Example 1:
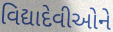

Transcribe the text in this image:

વિદ્યાદેવીઓને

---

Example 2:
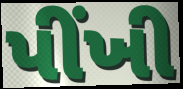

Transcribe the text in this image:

પીંખી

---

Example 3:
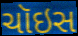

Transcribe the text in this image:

ચૉઇસ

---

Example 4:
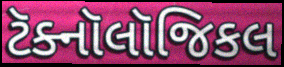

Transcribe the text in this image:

ટૅક્નૉલૉજિકલ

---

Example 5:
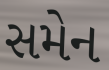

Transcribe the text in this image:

સમેન